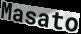
Masato